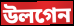
উলগেন